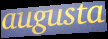
augusta